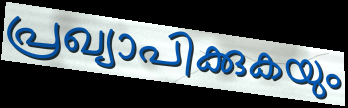
പ്രഖ്യാപിക്കുകയും